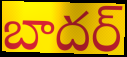
బాదర్